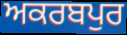
ਅਕਰਬਪੁਰ